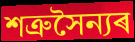
শত্ৰুসৈন্যৰ